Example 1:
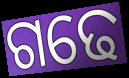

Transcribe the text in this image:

ଗଢେ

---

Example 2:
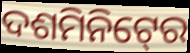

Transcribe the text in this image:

ଦଶମିନିଟ୍‍ରେ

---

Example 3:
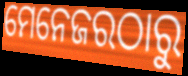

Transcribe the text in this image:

ମେନେଜରଠାରୁ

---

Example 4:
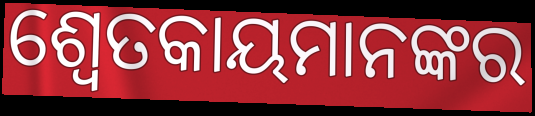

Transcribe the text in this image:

ଶ୍ବେତକାୟମାନଙ୍କର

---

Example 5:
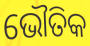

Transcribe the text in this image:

ଭୌତିକ